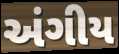
અંગીય